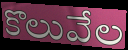
కొలువేల